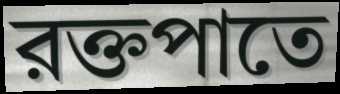
রক্তপাতে